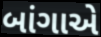
બાંગાએ